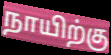
நாயிற்கு